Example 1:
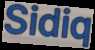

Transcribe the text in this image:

Sidiq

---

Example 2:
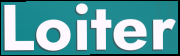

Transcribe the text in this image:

Loiter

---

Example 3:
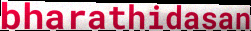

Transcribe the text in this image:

bharathidasan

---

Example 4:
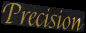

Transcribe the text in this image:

Precision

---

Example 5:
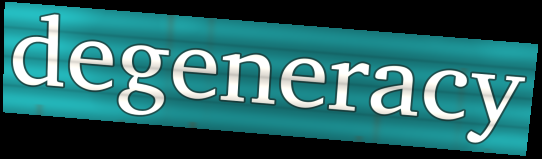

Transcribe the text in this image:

degeneracy